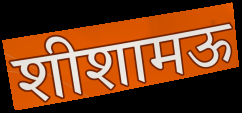
शीशामऊ